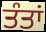
ਤੰਤਾਂ